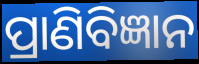
ପ୍ରାଣିବିଜ୍ଞାନ